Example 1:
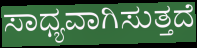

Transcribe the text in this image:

ಸಾಧ್ಯವಾಗಿಸುತ್ತದೆ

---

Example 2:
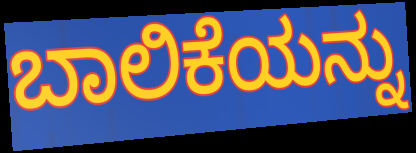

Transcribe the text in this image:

ಬಾಲಿಕೆಯನ್ನು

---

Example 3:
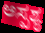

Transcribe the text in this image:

ಅಸ್ಪಶ್ಯ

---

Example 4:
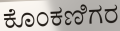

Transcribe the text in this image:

ಕೊಂಕಣಿಗರ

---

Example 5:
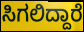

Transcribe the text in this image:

ಸಿಗಲಿದ್ದಾರೆ